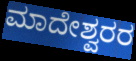
ಮಾದೇಶ್ವರರ